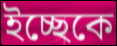
ইচ্ছেকে